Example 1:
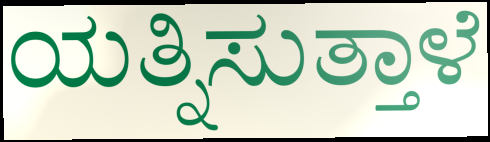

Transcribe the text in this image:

ಯತ್ನಿಸುತ್ತಾಳೆ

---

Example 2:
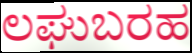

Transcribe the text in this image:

ಲಘುಬರಹ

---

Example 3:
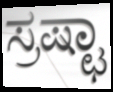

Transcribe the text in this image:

ಸ್ರಷ್ಟಾ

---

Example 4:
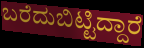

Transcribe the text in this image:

ಬರೆದುಬಿಟ್ಟಿದ್ದಾರೆ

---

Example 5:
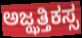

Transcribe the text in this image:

ಅಜ್ಝತ್ತಿಕಸ್ಸ